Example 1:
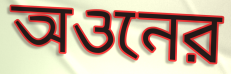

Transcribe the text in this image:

অওনের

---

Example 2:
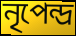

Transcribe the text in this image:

নৃপেন্দ্র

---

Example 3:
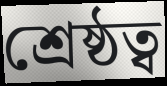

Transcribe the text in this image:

শ্রেষ্ঠত্ব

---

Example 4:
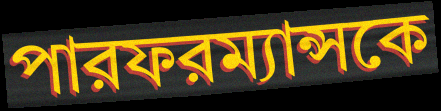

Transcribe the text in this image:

পারফরম্যান্সকে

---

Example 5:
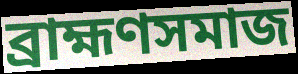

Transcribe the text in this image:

ব্রাহ্মণসমাজ